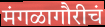
मंगळागौरीचं